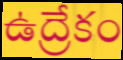
ఉద్రేకం